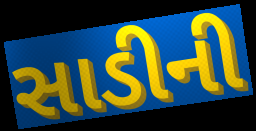
સાડીની